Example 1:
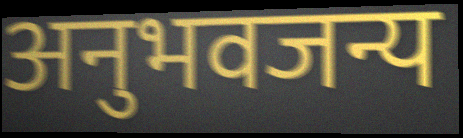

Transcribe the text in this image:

अनुभवजन्य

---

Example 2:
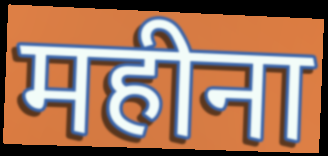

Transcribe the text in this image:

महीना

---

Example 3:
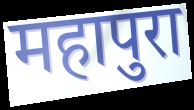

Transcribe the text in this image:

महापुरा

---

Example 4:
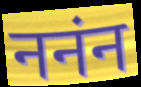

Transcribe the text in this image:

ननंन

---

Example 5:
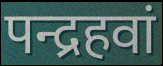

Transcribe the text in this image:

पन्द्रहवां